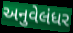
અનુવેલંધર